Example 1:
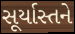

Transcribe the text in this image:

સૂર્યાસ્તને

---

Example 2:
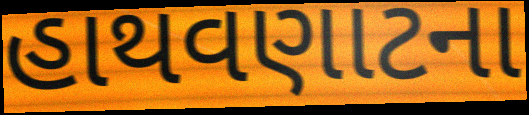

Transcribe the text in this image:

હાથવણાટના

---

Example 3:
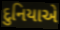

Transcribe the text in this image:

દુનિયાએ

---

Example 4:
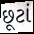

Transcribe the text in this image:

છૂટાં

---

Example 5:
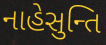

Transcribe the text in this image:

નાહેસુન્તિ